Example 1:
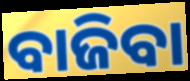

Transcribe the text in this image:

ବାଜିବା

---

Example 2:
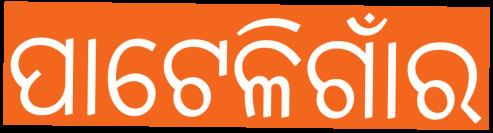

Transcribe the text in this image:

ପାଟେଳିଗାଁର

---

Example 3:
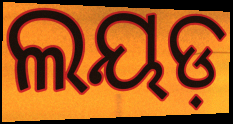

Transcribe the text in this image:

ଲୟଡ଼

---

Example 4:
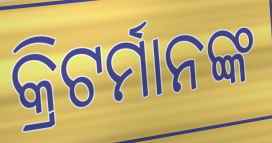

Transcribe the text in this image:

କ୍ରିଟର୍ମାନଙ୍କ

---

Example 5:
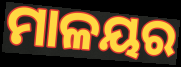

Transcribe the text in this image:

ମାଳୟର